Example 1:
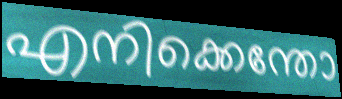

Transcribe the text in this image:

എനിക്കെന്തോ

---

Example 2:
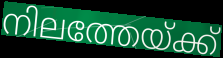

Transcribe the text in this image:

നിലത്തേയ്ക്ക്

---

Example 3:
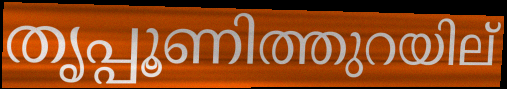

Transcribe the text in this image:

തൃപ്പൂണിത്തുറയില്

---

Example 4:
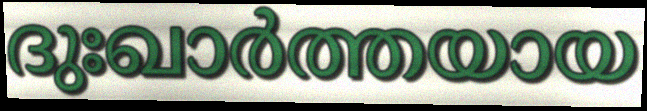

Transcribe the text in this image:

ദുഃഖാർത്തയായ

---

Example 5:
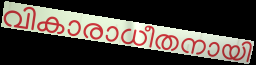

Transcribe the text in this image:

വികാരാധീതനായി